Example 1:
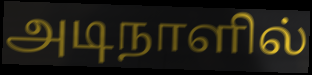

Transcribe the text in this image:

அடிநாளில்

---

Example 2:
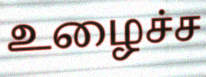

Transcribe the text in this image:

உழைச்ச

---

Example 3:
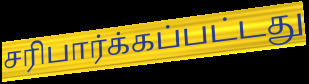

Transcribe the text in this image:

சரிபார்க்கப்பட்டது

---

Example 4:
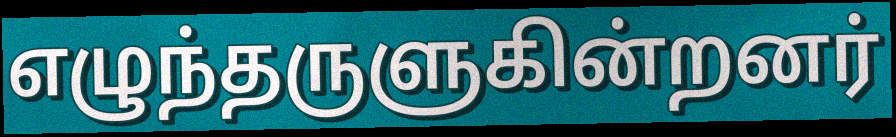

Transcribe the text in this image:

எழுந்தருளுகின்றனர்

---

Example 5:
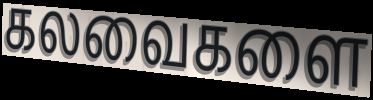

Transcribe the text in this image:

கலவைகளை